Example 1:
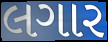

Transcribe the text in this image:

લગાર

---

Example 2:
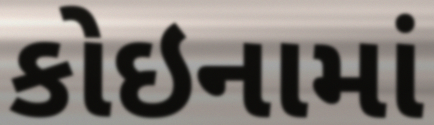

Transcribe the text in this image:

કોઇનામાં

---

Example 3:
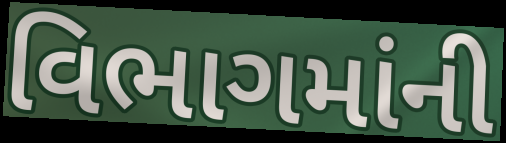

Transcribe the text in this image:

વિભાગમાંની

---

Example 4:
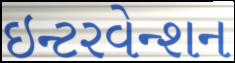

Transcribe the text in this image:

ઇન્ટરવેન્શન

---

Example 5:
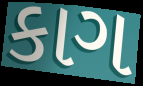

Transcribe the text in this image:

કાગ